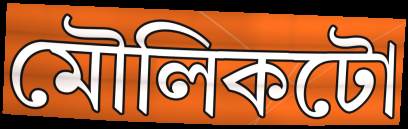
মৌলিকটো